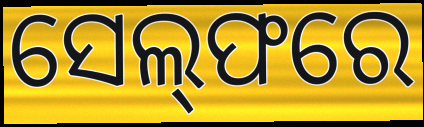
ସେଲ୍‌ଫରେ